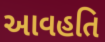
આવહતિ